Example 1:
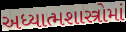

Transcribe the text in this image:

અધ્યાત્મશાસ્ત્રોમાં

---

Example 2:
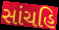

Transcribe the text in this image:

સાંચહિ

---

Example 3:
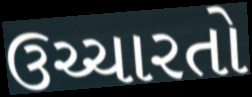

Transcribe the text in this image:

ઉચ્ચારતો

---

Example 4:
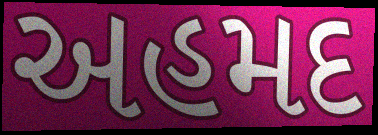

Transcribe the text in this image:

અહમદ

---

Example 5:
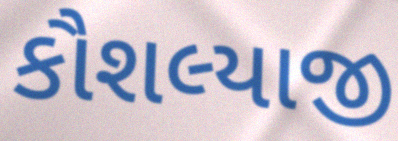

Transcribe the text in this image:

કૌશલ્યાજી